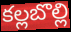
కల్లబొల్లి